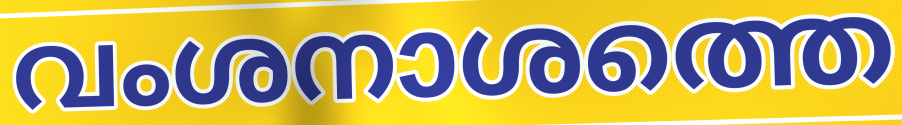
വംശനാശത്തെ